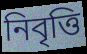
নিবৃত্তি